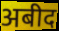
अबीद